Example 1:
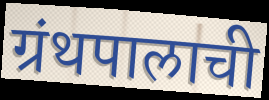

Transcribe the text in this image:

ग्रंथपालाची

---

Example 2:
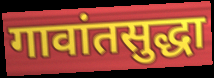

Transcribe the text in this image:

गावांतसुद्धा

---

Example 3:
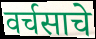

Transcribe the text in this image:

वर्चसाचे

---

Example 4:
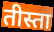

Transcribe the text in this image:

तीस्ता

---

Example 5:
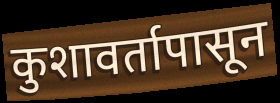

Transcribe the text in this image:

कुशावर्तापासून